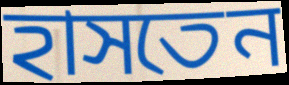
হাসতেন